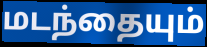
மடந்தையும்